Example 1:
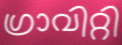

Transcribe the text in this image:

ഗ്രാവിറ്റി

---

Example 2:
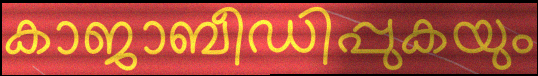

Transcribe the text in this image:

കാജാബീഡിപ്പുകയും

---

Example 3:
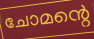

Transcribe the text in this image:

ചോമന്റെ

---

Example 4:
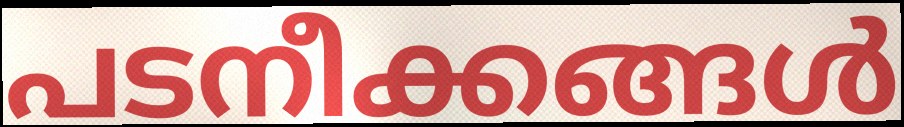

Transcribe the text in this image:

പടനീക്കങ്ങൾ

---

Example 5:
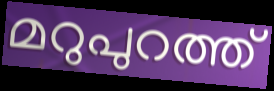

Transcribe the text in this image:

മറുപുറത്ത്